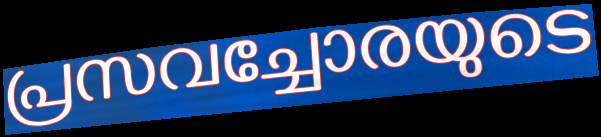
പ്രസവച്ചോരയുടെ